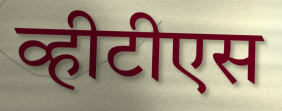
व्हीटीएस